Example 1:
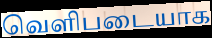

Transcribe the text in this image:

வெளிபடையாக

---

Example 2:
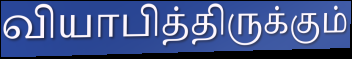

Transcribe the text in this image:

வியாபித்திருக்கும்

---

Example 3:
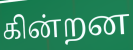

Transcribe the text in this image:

கின்றன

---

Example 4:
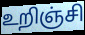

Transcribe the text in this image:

உறிஞ்சி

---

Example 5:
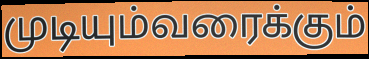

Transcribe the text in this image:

முடியும்வரைக்கும்